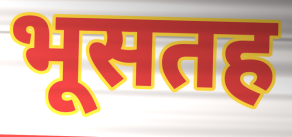
भूसतह